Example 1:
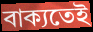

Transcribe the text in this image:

বাক্যতেই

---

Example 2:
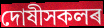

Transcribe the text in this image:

দোষীসকলৰ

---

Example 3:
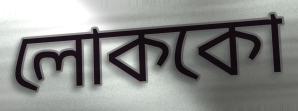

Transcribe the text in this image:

লোককো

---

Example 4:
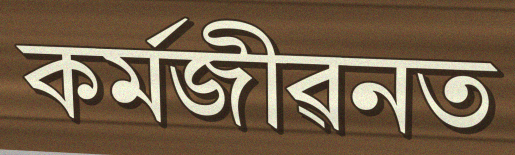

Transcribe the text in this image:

কৰ্মজীৱনত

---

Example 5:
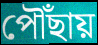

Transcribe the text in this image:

পৌঁছায়